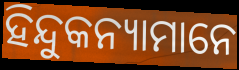
ହିନ୍ଦୁକନ୍ୟାମାନେ